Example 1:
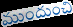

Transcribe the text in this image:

ముందుంచి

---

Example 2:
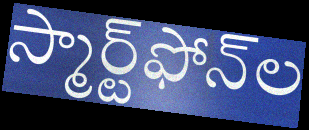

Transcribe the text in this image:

స్మార్ట్‌ఫోన్‌ల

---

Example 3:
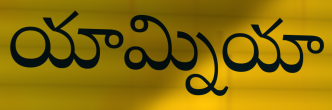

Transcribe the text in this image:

యామ్నియా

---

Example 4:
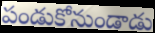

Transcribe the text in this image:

పండుకోనుండాడు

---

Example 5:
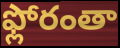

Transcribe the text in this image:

ఫ్లోరంతా